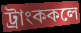
ট্রাংককলে